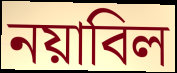
নয়াবিল